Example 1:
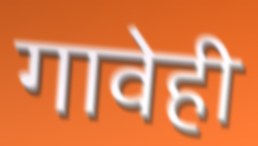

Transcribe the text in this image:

गावेही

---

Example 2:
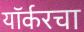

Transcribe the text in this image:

यॉर्करचा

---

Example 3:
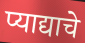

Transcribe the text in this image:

प्याद्याचे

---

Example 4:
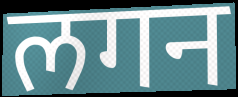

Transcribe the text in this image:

लगन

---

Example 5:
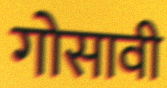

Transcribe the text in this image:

गोसावी